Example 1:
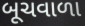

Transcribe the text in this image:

બૂચવાળા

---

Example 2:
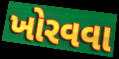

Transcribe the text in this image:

ખોરવવા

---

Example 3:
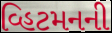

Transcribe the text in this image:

વ્હિટમનની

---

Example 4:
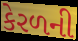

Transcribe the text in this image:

કેરળની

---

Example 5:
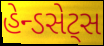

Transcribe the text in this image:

હેન્ડસેટ્સ